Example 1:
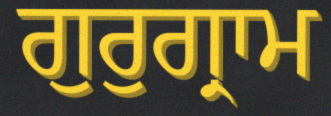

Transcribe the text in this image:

ਗੁਰੁਗ੍ਰਾਮ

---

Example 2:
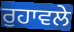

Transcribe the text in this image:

ਰੁਹਾਵਲੇ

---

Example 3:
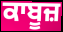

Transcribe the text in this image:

ਕਾਬੂਜ਼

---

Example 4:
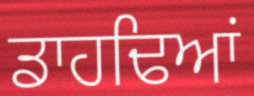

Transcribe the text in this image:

ਡਾਹਢਿਆਂ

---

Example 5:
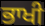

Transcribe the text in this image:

ਭਾਖੀ